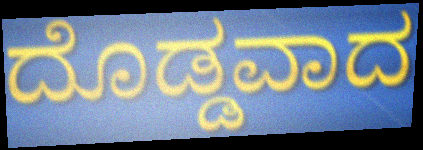
ದೊಡ್ಡವಾದ